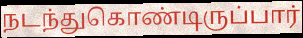
நடந்துகொண்டிருப்பார்